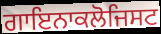
ਗਾਇਨਾਕਲੋਜਿਸਟ